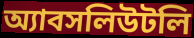
অ্যাবসলিউটলি